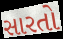
સારતો